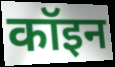
कॉइन